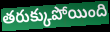
తరుక్కుపోయింది